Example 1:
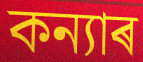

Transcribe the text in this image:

কন্যাৰ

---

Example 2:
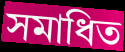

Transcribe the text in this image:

সমাধিত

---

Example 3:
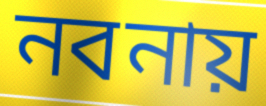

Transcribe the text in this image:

নবনায়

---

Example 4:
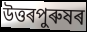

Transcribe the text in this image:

উত্তৰপুৰুষৰ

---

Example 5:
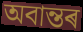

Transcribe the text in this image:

অবান্তৰ